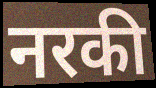
नरकी